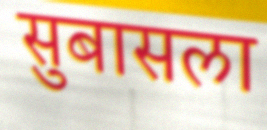
सुबासला